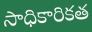
సాధికారికత